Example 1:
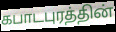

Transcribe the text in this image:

கபாடபுரத்தின்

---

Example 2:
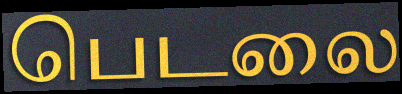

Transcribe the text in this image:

பெடலை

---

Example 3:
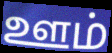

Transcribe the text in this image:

ஊம்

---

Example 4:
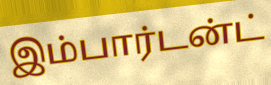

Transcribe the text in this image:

இம்பார்டன்ட்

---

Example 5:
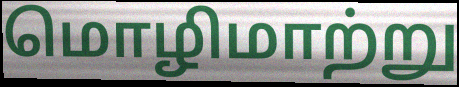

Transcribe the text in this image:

மொழிமாற்று